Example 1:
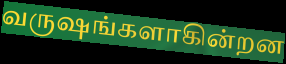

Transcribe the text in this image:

வருஷங்களாகின்றன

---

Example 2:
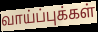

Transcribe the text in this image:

வாய்ப்புக்கள்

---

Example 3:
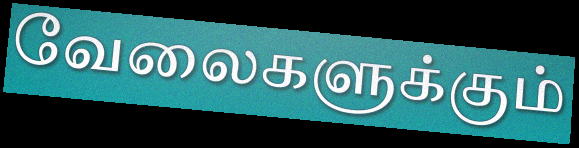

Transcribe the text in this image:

வேலைகளுக்கும்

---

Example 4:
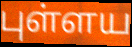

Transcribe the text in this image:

புள்ளய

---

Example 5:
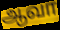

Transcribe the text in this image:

ஆவா